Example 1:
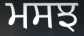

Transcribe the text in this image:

ਮਸਝ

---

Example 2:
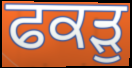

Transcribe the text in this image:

ਫਕੜੁ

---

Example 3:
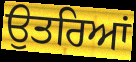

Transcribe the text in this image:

ਉਤਰਿਆਂ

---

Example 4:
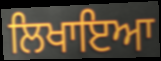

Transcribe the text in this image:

ਲਿਖਾਇਆ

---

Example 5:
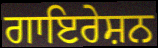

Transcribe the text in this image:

ਗਾਇਰੇਸ਼ਨ